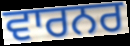
ਵਾਰਨਰ